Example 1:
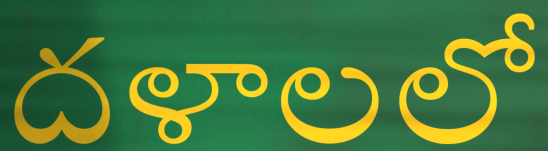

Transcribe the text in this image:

దళాలలో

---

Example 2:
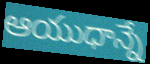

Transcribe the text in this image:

ఆయుధాన్నే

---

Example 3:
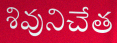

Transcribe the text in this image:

శివునిచేత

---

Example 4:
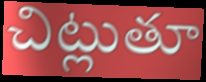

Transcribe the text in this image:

చిట్లుతూ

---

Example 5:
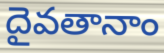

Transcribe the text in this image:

దైవతానాం